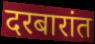
दरबारांत